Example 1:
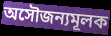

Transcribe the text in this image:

অসৌজন্যমূলক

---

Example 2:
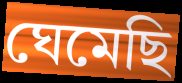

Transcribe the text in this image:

ঘেমেছি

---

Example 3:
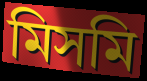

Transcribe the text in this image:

মিসমি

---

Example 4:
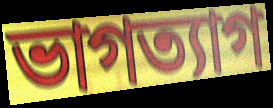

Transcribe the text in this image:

ভাগত্যাগ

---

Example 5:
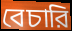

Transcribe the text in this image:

বেচারি